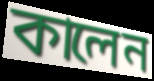
কালেন